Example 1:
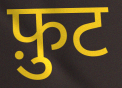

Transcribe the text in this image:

फ़ुट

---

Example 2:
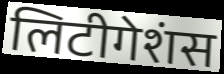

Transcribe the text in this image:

लिटीगेशंस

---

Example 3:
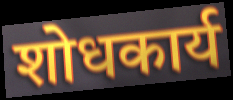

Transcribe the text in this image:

शोधकार्य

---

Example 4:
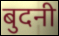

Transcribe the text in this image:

बुदनी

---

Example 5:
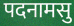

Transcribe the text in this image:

पदनामसु